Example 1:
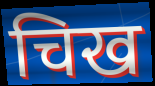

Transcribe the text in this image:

चिख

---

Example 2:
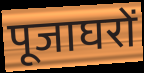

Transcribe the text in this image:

पूजाघरों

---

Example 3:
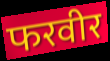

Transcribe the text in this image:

फरवीर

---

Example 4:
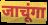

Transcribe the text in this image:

जाचूंगा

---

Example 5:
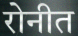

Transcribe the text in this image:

रोनीत